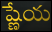
ష్ణేయ